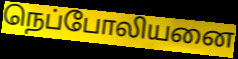
நெப்போலியனை